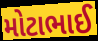
મોટાભાઈ